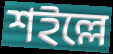
শইল্লে